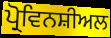
ਪ੍ਰੋਵਿਨਸ਼ੀਅਲ